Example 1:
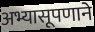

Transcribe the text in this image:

अभ्यासूपणाने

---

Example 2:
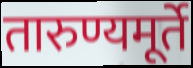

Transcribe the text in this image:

तारुण्यमूर्ते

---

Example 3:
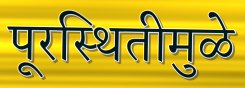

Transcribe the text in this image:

पूरस्थितीमुळे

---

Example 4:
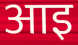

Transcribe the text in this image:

आइ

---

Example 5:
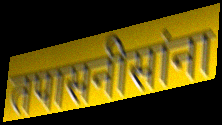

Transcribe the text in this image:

तपासनीसांना